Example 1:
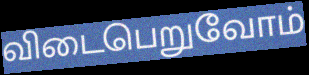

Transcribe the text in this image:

விடைபெறுவோம்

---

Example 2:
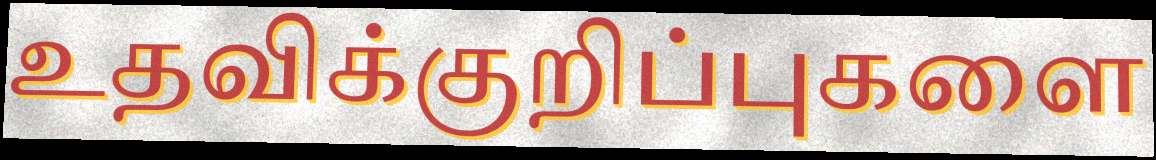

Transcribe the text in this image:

உதவிக்குறிப்புகளை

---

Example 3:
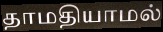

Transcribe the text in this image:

தாமதியாமல்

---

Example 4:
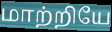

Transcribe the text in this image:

மாற்றியே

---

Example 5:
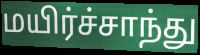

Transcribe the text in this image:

மயிர்ச்சாந்து